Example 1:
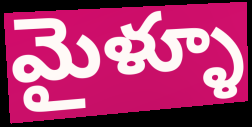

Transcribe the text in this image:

మైళ్ళూ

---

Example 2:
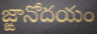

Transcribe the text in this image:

జ్ఙానోదయం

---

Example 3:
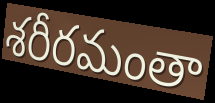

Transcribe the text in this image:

శరీరమంతా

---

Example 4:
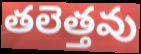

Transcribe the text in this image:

తలెత్తవు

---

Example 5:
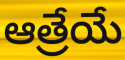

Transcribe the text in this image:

ఆత్రేయే